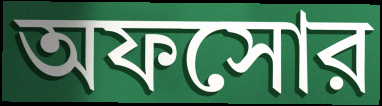
অফসোর